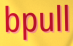
bpull